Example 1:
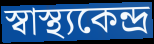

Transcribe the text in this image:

স্বাস্থ্যকেন্দ্ৰ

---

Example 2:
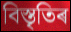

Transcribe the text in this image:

বিস্তৃতিৰ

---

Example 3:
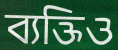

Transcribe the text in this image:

ব্যক্তিও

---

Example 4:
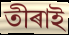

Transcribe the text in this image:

তীৰাই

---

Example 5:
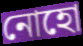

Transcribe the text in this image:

নোহো